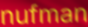
nufman